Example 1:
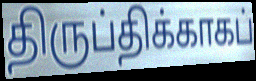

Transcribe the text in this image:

திருப்திக்காகப்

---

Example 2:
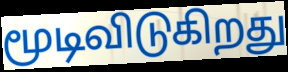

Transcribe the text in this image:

மூடிவிடுகிறது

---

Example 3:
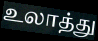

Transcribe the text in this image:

உலாத்து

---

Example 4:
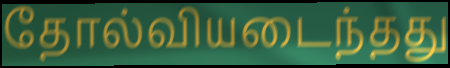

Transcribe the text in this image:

தோல்வியடைந்தது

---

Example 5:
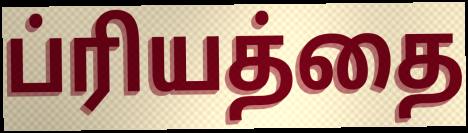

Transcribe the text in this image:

ப்ரியத்தை